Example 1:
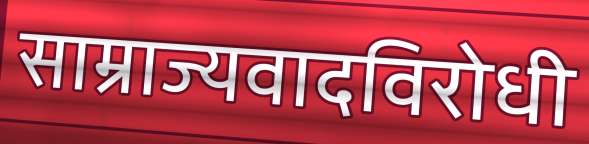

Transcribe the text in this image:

साम्राज्यवादविरोधी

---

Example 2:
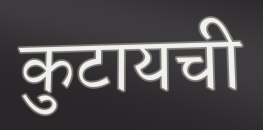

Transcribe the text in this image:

कुटायची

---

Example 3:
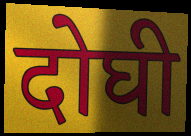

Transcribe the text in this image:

दोघी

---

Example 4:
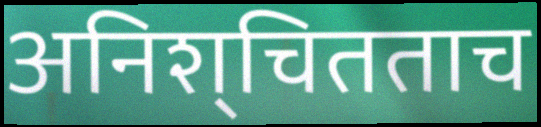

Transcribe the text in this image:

अनिश्चितताच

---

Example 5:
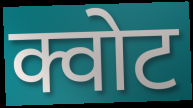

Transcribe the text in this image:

क्वोट